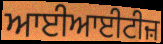
ਆਈਆਈਟੀਜ਼